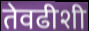
तेवढीशी